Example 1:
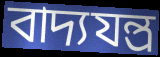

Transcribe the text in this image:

বাদ্যযন্ত্ৰ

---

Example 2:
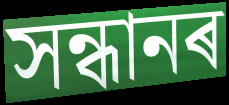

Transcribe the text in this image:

সন্ধানৰ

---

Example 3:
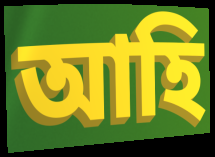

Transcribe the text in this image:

আহি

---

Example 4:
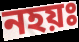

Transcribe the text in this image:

নহয়ঃ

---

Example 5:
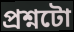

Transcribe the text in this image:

প্ৰশ্নটো